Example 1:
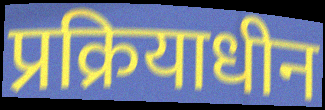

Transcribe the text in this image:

प्रक्रियाधीन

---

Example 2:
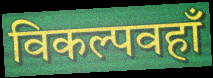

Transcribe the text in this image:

विकल्पवहाँ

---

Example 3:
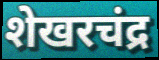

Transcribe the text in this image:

शेखरचंद्र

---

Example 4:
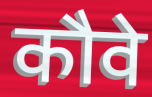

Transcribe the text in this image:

कौवे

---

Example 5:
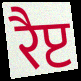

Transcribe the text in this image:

रैप्ट